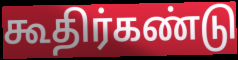
கூதிர்கண்டு